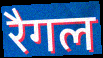
रैगल